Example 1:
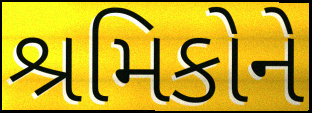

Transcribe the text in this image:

શ્રમિકોને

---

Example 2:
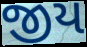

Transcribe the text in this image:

જીય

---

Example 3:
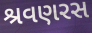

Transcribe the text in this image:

શ્રવણરસ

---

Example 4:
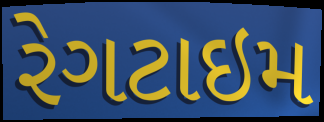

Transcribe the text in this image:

રેગટાઇમ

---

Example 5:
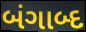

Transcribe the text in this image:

બંગાબ્દ